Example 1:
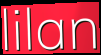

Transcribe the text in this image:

lilan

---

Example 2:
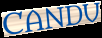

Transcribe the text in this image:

CANDU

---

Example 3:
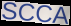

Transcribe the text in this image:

SCCA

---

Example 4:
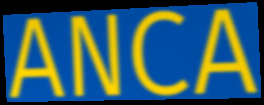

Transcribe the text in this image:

ANCA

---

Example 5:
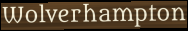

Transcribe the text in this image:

Wolverhampton